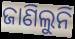
ଜାଣିଲୁନି